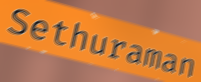
Sethuraman